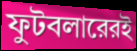
ফুটবলারেরই